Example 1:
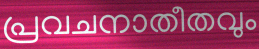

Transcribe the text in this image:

പ്രവചനാതീതവും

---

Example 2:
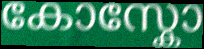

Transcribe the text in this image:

കോസ്കോ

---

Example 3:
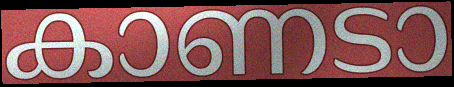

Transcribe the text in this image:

കാണടാ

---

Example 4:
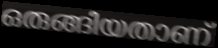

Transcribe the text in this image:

ഒരുങ്ങിയതാണ്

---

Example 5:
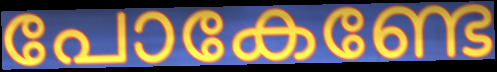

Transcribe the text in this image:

പോകേണ്ടേ